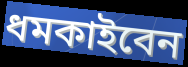
ধমকাইবেন